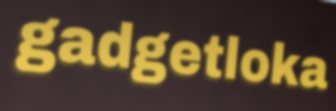
gadgetloka